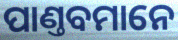
ପାଣ୍ତବମାନେ